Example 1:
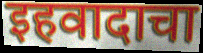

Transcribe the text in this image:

इहवादाचा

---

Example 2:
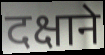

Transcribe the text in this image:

दक्षाने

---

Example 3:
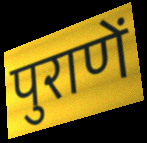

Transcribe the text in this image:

पुराणें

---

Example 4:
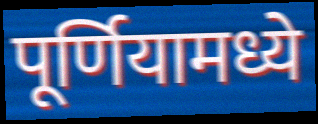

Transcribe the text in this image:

पूर्णियामध्ये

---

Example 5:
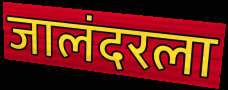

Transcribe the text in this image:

जालंदरला